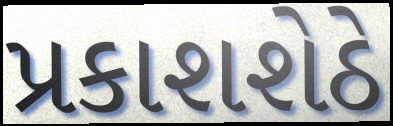
પ્રકાશશેઠે